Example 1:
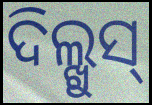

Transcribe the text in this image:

ଦିଲ୍ଖୁସ୍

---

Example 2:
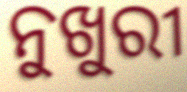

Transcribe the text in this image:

ନୁଖୁରୀ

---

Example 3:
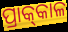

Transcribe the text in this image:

ପ୍ରାକ୍‌କାଳ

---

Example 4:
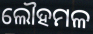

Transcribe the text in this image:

ଲୌହମଳ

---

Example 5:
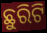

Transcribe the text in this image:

ଛୁରିଟି